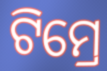
ଟିମ୍ରେ